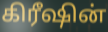
கிரீஷின்